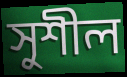
সুশীল